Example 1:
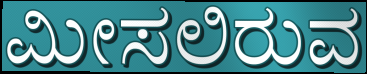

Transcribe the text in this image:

ಮೀಸಲಿರುವ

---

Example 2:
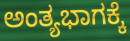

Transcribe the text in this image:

ಅಂತ್ಯಭಾಗಕ್ಕೆ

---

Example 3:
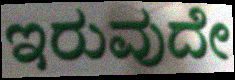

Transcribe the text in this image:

ಇರುವುದೇ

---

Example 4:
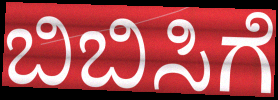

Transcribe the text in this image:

ಬಿಬಿಸಿಗೆ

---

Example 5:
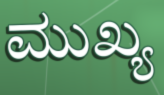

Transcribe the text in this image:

ಮುಖ್ಯ